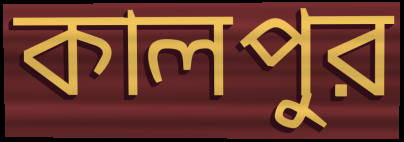
কালপুর